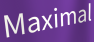
Maximal